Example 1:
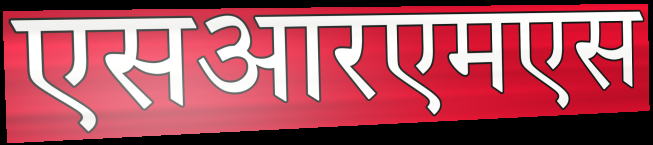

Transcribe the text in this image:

एसआरएमएस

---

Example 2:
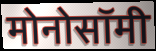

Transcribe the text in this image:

मोनोसॉमी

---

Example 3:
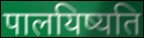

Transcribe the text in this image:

पालयिष्यति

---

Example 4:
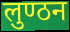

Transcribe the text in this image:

लुण्ठन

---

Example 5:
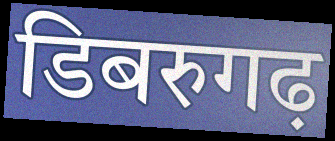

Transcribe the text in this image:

डिबरुगढ़